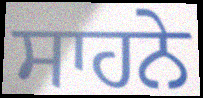
ਸਾਹਨੇ